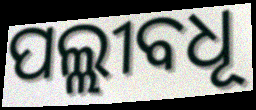
ପଲ୍ଲୀବଧୂ